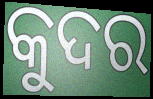
କୁଦର